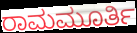
ರಾಮಮೂರ್ತಿ